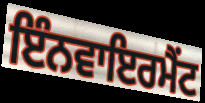
ਇੰਨਵਾਇਰਮੈਂਟ